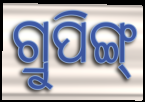
ଗ୍ରୁପିଙ୍ଗ୍